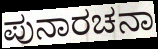
ಪುನಾರಚನಾ